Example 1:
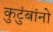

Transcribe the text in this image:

कुटुंबांनो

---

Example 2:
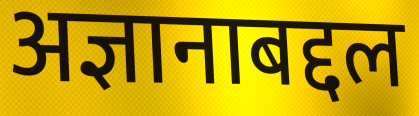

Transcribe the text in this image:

अज्ञानाबद्दल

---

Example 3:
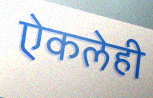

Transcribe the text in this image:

ऐकलेही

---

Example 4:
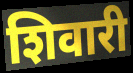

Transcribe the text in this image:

शिवारी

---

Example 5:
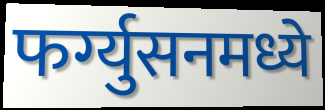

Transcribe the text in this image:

फर्ग्युसनमध्ये